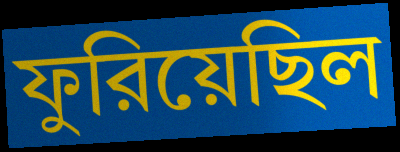
ফুরিয়েছিল